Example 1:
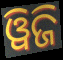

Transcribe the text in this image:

ୱିଜି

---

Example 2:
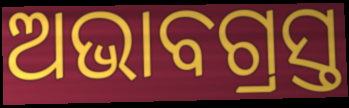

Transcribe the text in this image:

ଅଭାବଗ୍ରସ୍ତ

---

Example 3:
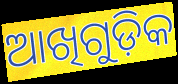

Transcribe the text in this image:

ଆଖିଗୁଡ଼ିକ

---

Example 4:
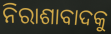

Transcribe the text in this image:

ନିରାଶାବାଦକୁ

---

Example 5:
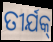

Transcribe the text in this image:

ତୀର୍ଯକ୍